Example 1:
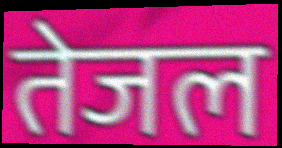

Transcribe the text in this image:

तेजल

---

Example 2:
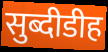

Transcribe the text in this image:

सुब्दीडीह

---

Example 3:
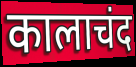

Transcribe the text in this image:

कालाचंद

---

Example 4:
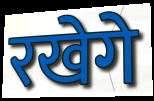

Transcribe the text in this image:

रखेगे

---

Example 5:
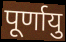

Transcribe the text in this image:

पूर्णायु